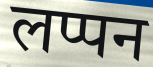
लप्पन